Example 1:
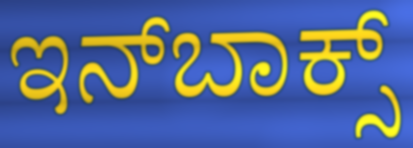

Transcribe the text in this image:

ಇನ್‍ಬಾಕ್ಸ್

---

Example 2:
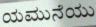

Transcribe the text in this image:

ಯಮುನೆಯು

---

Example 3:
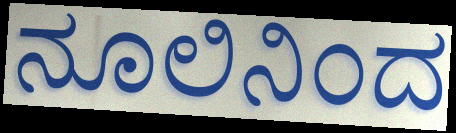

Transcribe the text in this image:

ನೂಲಿನಿಂದ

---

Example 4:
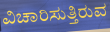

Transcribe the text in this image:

ವಿಚಾರಿಸುತ್ತಿರುವ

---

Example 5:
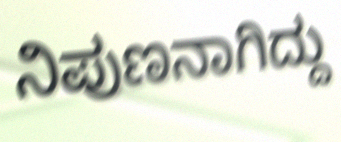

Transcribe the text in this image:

ನಿಪುಣನಾಗಿದ್ದು